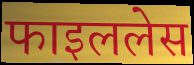
फाइललेस